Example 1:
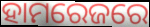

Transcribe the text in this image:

ହାମରେଜରେ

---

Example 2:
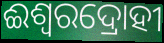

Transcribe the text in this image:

ଈଶ୍ଵରଦ୍ରୋହୀ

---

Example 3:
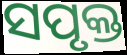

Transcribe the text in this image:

ସପୃକ୍ତ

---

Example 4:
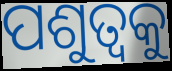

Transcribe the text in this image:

ପଶୁତ୍ୱକୁ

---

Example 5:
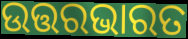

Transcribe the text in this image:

ଉତ୍ତରଭାରତ